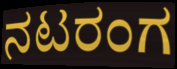
ನಟರಂಗ